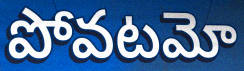
పోవటమో